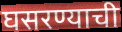
घसरण्याची